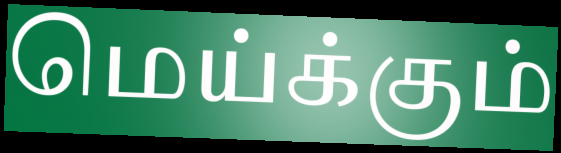
மெய்க்கும்